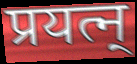
प्रयत्न्